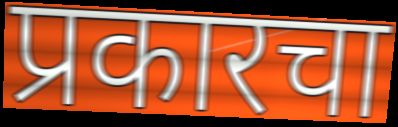
प्रकारचा